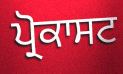
ਪ੍ਰੋਕਾਸਟ